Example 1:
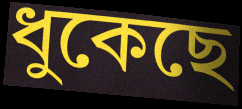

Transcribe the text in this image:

ধুকেছে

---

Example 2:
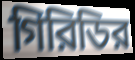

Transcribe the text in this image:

গিরিডির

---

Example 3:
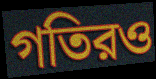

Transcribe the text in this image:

গতিরও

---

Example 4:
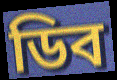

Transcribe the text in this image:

ডিব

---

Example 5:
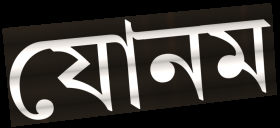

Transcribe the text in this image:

যোনম